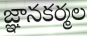
జ్ఞానకర్మల